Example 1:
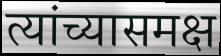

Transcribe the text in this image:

त्यांच्यासमक्ष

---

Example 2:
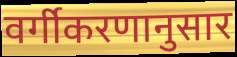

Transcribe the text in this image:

वर्गीकरणानुसार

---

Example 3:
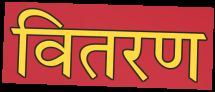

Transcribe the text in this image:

वितरण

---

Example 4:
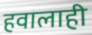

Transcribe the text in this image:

हवालाही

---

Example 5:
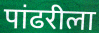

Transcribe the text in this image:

पांढरीला